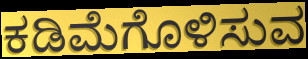
ಕಡಿಮೆಗೊಳಿಸುವ